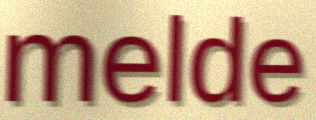
melde